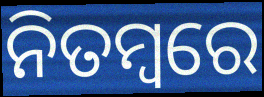
ନିତମ୍ୱରେ